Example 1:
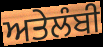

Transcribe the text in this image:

ਅਤੇਲੰਬੀ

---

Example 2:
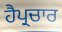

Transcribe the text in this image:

ਹੈਪ੍ਰਚਾਰ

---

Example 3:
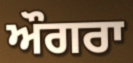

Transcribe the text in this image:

ਔਗਰਾ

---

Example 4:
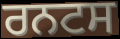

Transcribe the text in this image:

ਰਨਟਸ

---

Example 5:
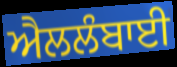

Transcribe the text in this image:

ਐਲਲੰਬਾਈ